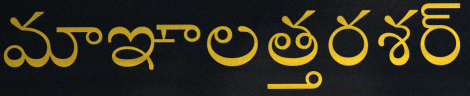
మాఞాలత్తరశర్